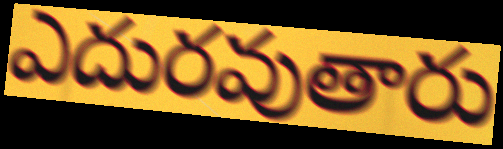
ఎదురవుతారు